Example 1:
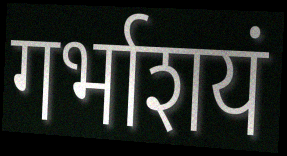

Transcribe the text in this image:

गर्भाशयं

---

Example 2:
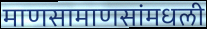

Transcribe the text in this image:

माणसामाणसांमधली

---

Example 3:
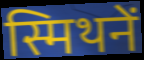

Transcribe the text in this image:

स्मिथनें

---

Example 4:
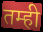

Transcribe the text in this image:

तम्ही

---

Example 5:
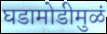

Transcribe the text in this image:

घडामोडीमुळं